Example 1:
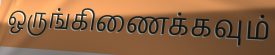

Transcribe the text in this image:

ஒருங்கிணைக்கவும்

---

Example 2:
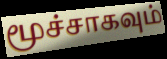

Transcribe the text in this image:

மூச்சாகவும்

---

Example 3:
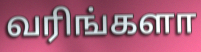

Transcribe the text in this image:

வரிங்களா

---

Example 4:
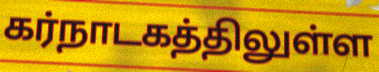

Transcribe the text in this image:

கர்நாடகத்திலுள்ள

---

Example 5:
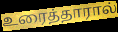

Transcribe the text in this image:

உரைத்தாரால்